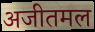
अजीतमल